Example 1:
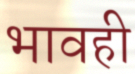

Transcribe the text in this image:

भावही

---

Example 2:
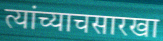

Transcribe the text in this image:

त्यांच्याचसारखा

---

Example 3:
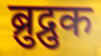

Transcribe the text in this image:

ब्रुद्रुक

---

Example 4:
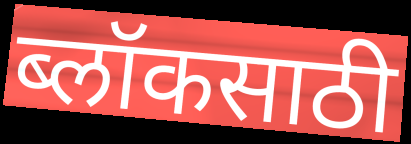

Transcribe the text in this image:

ब्लॉकसाठी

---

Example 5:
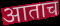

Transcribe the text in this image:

आताच